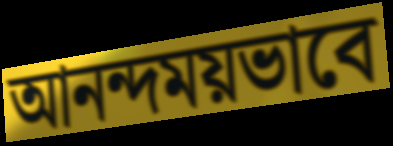
আনন্দময়ভাবে